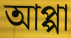
আপ্পা